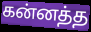
கன்னத்த